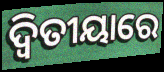
ଦ୍ଵିତୀୟାରେ